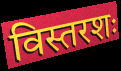
विस्तरशः